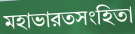
মহাভারতসংহিতা